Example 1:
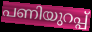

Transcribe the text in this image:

പണിയുറപ്പ്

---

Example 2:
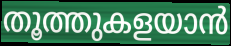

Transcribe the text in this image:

തൂത്തുകളയാൻ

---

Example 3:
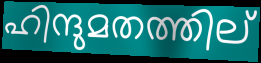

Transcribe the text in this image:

ഹിന്ദുമതത്തില്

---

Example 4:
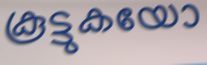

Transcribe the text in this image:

കൂട്ടുകയോ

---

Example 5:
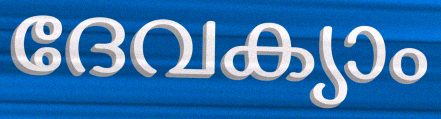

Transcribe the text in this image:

ദേവക്യാം